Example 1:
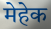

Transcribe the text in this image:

मेहेक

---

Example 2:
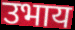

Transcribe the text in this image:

उभाय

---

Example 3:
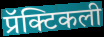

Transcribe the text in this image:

प्रॅक्टिकली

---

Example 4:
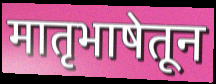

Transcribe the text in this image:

मातृभाषेतून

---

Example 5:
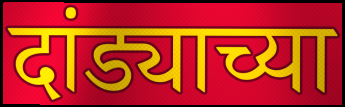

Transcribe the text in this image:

दांड्याच्या